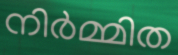
നിർമ്മിത